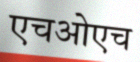
एचओएच